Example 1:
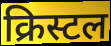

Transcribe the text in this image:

क्रिस्टल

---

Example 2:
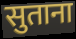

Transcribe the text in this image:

सुताना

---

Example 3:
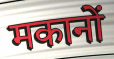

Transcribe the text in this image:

मकानों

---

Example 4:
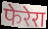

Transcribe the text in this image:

फेरेरा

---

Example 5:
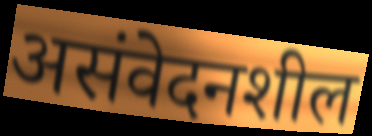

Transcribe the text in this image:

असंवेदनशील